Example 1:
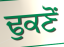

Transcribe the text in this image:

ਢੁਕਣੋਂ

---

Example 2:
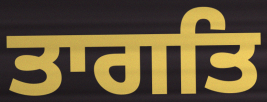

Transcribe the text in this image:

ਤਾਗਤਿ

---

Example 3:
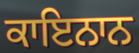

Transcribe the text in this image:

ਕਾਇਨਾਨ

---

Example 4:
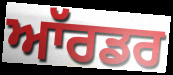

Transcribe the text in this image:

ਆੱਰਡਰ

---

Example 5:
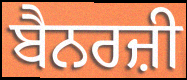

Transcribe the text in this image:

ਬੈਨਰਜ਼ੀ